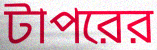
টাপরের